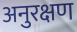
अनुरक्षण